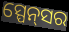
ସ୍ପେନ୍‌ସର